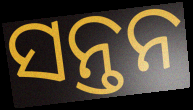
ସନ୍ତନ